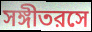
সঙ্গীতরসে